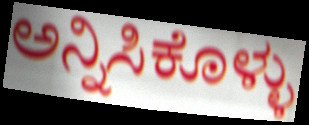
ಅನ್ನಿಸಿಕೊಳ್ಳು